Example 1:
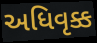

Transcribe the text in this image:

અધિવૃક્ક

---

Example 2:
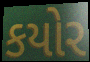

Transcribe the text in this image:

કયોર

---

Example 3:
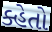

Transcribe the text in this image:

ક્હેતો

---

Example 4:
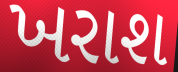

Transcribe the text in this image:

ખરાશ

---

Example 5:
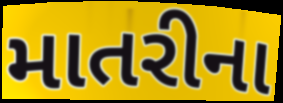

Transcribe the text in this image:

માતરીના